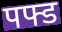
पफ्ड